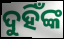
ଦୁହିଁଙ୍କ